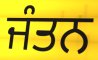
ਜੰਤਨ